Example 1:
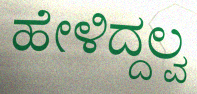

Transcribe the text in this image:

ಹೇಳಿದ್ದಲ್ವ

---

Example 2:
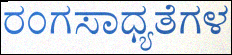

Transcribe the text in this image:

ರಂಗಸಾಧ್ಯತೆಗಳ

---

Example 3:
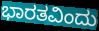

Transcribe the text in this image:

ಭಾರತವಿಂದು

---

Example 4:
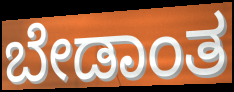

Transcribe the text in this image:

ಬೇಡಾಂತ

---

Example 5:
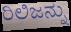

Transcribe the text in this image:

ರಿಲಿಜನ್ನು